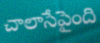
చాలాసేపైంది